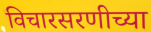
विचारसरणीच्या